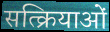
सत्क्रियाओं